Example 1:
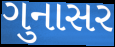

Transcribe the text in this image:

ગુનાસર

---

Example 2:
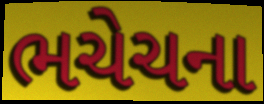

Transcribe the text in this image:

ભચેચના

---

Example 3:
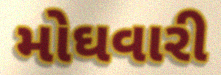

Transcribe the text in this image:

મોઘવારી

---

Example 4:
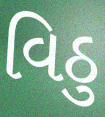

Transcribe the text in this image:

વિઠુ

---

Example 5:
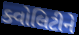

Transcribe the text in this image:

ક્વોલિટીને